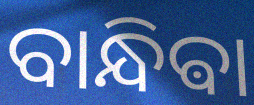
ବାନ୍ଧିଵା